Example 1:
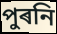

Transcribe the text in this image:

পুৰনি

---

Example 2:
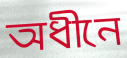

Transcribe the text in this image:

অধীনে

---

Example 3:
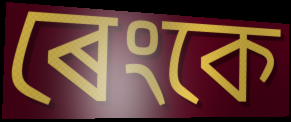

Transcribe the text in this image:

ৰেংকে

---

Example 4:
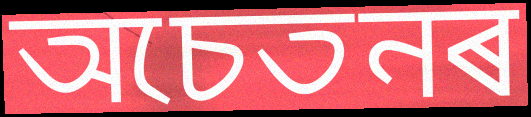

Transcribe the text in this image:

অচেতনৰ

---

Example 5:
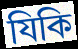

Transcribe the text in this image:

যিকি